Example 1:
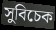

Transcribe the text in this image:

সুবিচেক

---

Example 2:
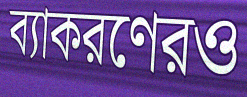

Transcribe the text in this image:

ব্যাকরণেরও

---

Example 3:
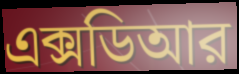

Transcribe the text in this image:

এক্সডিআর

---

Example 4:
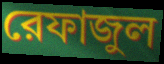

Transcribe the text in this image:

রেফাজুল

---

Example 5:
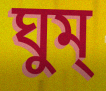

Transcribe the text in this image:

ঘুম্